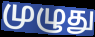
முழுது